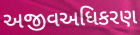
અજીવઅધિકરણ